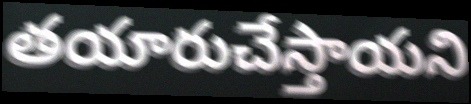
తయారుచేస్తాయని